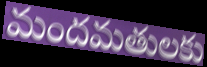
మందమతులకు